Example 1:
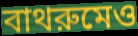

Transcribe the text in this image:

বাথরুমেও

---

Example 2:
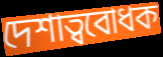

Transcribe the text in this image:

দেশাত্ববোধক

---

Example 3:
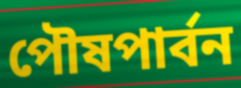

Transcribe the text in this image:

পৌষপার্বন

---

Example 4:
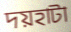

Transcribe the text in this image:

দয়হাটা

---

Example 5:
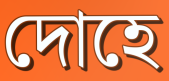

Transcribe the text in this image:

দোহে